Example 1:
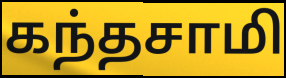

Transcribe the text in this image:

கந்தசாமி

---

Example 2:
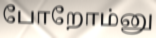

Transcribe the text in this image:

போறோம்னு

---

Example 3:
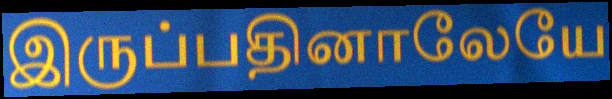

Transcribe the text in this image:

இருப்பதினாலேயே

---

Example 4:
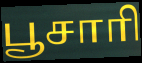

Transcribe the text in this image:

பூசாரி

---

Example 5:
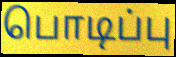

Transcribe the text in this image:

பொடிப்பு